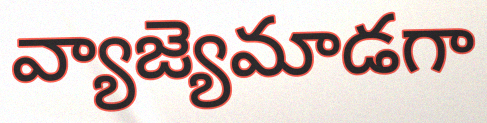
వ్యాజ్యెమాడగా